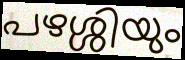
പഴശ്ശിയും